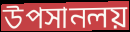
উপসানলয়